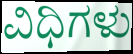
ವಿಧಿಗಳು